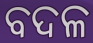
ବଦଳ